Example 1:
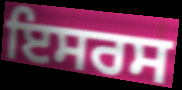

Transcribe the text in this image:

ਇਸਰਸ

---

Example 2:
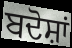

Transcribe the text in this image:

ਬਦੋਸ਼ਾਂ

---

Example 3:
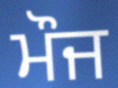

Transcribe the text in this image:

ਮੌਜ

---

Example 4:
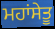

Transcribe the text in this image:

ਮਹਾਂਸੇਤੂ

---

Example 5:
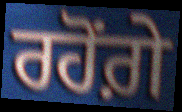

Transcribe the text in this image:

ਰਹੋਂਗ਼ੇ